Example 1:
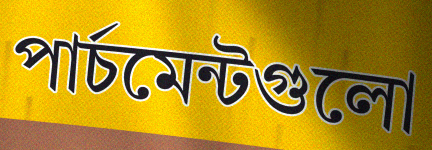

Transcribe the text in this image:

পার্চমেন্টগুলো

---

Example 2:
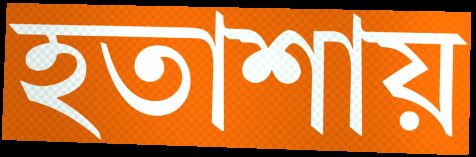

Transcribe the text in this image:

হতাশায়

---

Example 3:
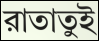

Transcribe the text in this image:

রাতাতুই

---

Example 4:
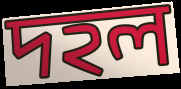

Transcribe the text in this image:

দহল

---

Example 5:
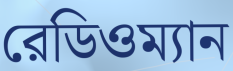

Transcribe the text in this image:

রেডিওম্যান